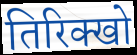
तिरिक्खो